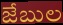
జేబుల